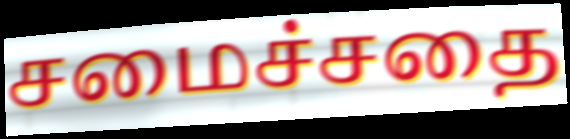
சமைச்சதை